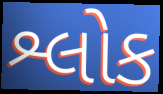
શ્લોક